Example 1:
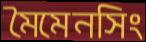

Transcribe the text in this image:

মৈমেনসিং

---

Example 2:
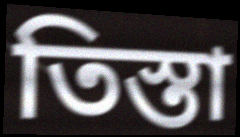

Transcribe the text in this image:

তিস্তা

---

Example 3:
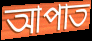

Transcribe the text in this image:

আপাত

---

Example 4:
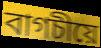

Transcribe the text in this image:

বাগচীয়ে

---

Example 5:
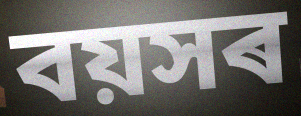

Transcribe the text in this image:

বয়সৰ